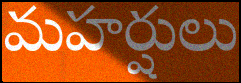
మహర్షులు